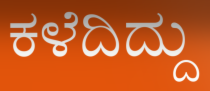
ಕಳೆದಿದ್ದು